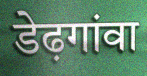
डेढ़गांवा